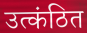
उत्कंठित